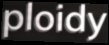
ploidy